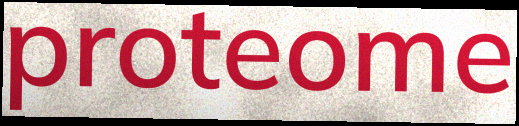
proteome